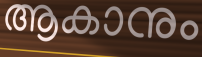
ആകാനും